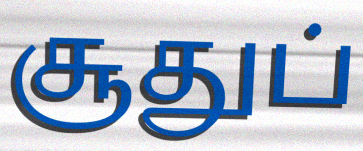
சூதுப்